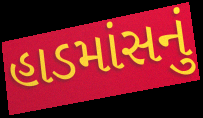
હાડમાંસનું